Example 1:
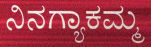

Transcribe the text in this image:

ನಿನಗ್ಯಾಕಮ್ಮ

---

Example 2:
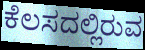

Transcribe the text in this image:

ಕೆಲಸದಲ್ಲಿರುವ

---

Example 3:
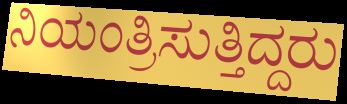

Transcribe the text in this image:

ನಿಯಂತ್ರಿಸುತ್ತಿದ್ದರು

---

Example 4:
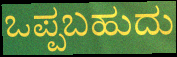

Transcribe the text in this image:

ಒಪ್ಪಬಹುದು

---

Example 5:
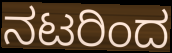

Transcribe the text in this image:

ನಟರಿಂದ